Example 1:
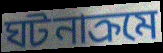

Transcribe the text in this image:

ঘটনাক্রমে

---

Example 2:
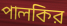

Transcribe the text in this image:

পালকির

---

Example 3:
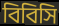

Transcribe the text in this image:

বিবিসি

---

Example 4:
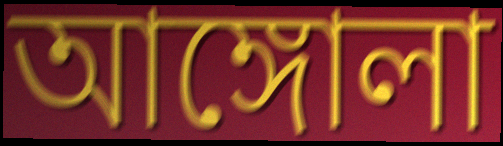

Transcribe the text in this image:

আঙ্গোলা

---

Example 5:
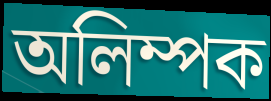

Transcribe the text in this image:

অলিম্পক